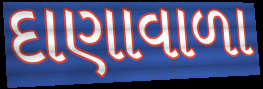
દાણાવાળા